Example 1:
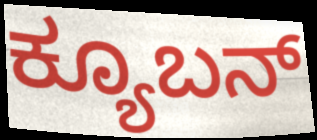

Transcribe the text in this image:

ಕ್ಯೂಬನ್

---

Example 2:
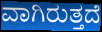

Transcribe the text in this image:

ವಾಗಿರುತ್ತದೆ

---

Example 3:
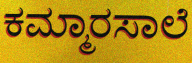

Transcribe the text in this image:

ಕಮ್ಮಾರಸಾಲೆ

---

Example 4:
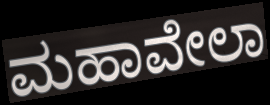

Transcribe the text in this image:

ಮಹಾವೇಲಾ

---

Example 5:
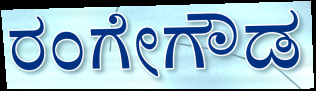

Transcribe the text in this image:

ರಂಗೇಗೌಡ